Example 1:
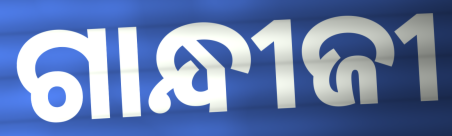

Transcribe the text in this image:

ଗାନ୍ଧୀଜୀ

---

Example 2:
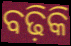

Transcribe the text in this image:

ବଢ଼ିକି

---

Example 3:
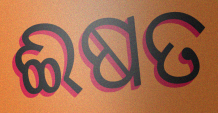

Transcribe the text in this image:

ଈଷତ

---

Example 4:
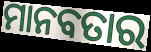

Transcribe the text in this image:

ମାନବତାର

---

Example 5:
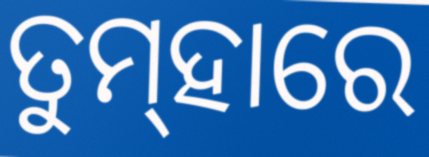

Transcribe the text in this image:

ତୁମ୍‌ହାରେ